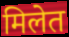
मिलेत